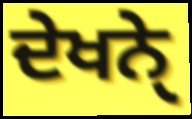
ਦੇਖਨੑੇ